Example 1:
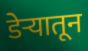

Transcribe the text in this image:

डेऱ्यातून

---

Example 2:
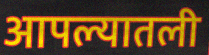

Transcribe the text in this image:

आपल्यातली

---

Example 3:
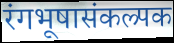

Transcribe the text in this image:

रंगभूषासंकल्पक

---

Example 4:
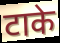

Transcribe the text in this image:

टाके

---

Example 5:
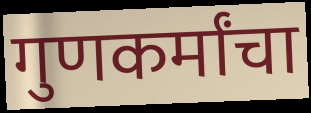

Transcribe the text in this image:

गुणकर्मांचा